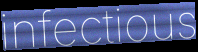
infectious